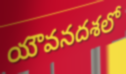
యౌవనదశలో